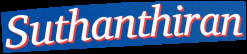
Suthanthiran